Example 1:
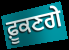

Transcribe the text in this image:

ਫ਼ੂਕਣਗੇ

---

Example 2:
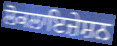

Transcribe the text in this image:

ਲੋਕਲਾਇਜ਼ੇਸ਼ਨ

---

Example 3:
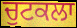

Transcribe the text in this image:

ਚੁਟਕਲਾ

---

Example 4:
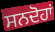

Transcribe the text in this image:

ਸਨਦੋਹਾਂ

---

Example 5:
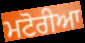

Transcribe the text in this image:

ਮਟੋਰੀਆ